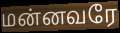
மன்னவரே